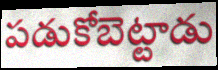
పడుకోబెట్టాడు